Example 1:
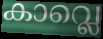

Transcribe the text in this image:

കാവ്ലെ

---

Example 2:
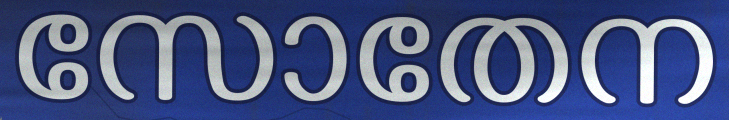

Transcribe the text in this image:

സോതേന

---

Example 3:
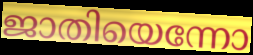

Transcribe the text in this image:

ജാതിയെന്നോ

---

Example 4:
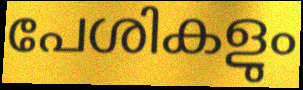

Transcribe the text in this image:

പേശികളും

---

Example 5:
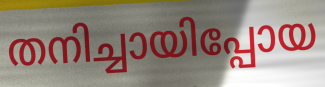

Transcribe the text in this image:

തനിച്ചായിപ്പോയ